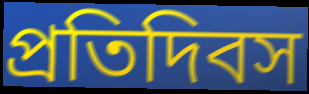
প্রতিদিবস